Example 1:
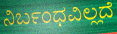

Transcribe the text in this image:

ನಿರ್ಬಂಧವಿಲ್ಲದೆ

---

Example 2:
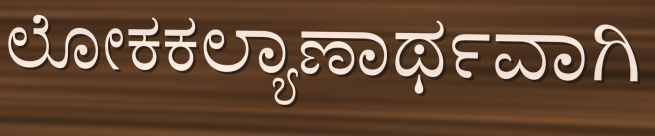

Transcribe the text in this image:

ಲೋಕಕಲ್ಯಾಣಾರ್ಥವಾಗಿ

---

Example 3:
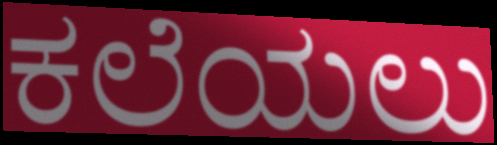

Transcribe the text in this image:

ಕಲೆಯಲು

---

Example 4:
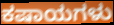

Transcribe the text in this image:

ಕಷಾಯಗಳು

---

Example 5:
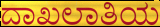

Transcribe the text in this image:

ದಾಖಲಾತಿಯ